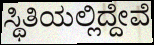
ಸ್ಥಿತಿಯಲ್ಲಿದ್ದೇವೆ